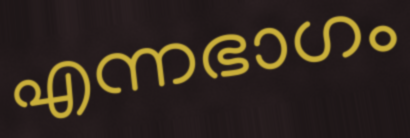
എന്നഭാഗം